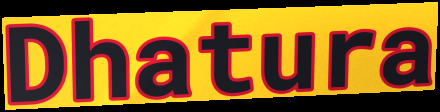
Dhatura